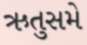
ઋતુસમે